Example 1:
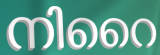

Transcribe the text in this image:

നിറൈ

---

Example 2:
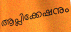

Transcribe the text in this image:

ആപ്ലിക്കേഷനും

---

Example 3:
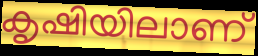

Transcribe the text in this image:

കൃഷിയിലാണ്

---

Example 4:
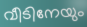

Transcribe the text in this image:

വീടിനേയും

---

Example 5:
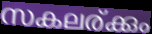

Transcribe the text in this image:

സകലര്ക്കും